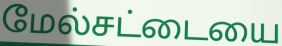
மேல்சட்டையை